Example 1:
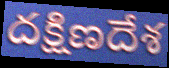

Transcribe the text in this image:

దక్షిణదేశ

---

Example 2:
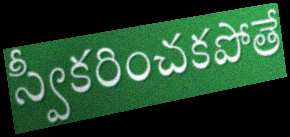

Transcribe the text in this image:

స్వీకరించకపోతే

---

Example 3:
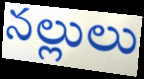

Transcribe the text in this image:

నల్లులు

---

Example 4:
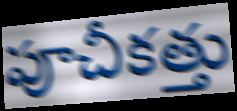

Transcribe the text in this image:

పూచీకత్తు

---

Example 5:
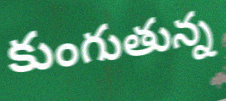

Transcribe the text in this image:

కుంగుతున్న